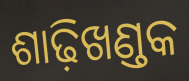
ଶାଢ଼ିଖଣ୍ଡକ